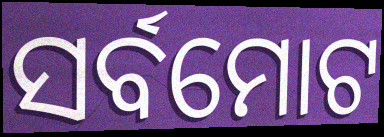
ସର୍ବମୋଟ